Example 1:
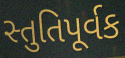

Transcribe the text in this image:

સ્તુતિપૂર્વક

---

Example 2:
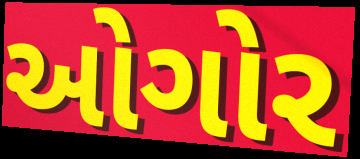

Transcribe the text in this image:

ઓગોર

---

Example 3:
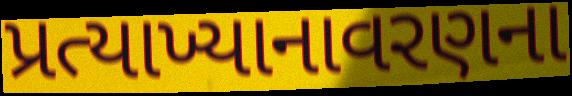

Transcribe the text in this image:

પ્રત્યાખ્યાનાવરણના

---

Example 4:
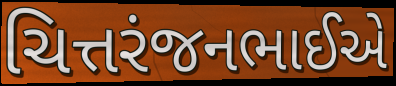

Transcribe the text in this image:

ચિત્તરંજનભાઈએ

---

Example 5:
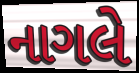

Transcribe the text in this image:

નાગલે